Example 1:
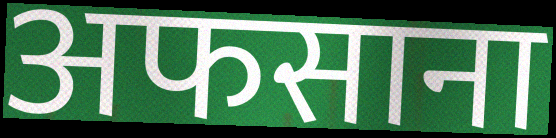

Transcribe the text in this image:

अफसाना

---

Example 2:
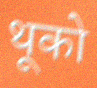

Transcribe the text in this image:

थूको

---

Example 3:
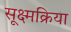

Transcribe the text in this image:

सूक्ष्मक्रिया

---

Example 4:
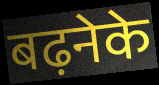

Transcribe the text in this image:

बढ़नेके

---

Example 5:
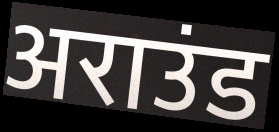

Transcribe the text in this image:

अराउंड